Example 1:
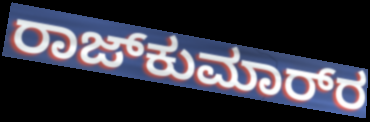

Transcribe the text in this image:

ರಾಜ್‌ಕುಮಾರ್‌ರ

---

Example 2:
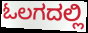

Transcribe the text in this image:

ಓಲಗದಲ್ಲಿ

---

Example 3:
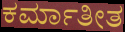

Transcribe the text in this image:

ಕರ್ಮಾತೀತ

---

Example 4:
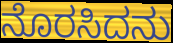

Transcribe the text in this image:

ನೊರಸಿದನು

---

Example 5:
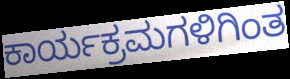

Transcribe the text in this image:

ಕಾರ್ಯಕ್ರಮಗಳಿಗಿಂತ